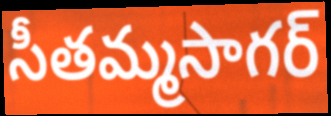
సీతమ్మసాగర్